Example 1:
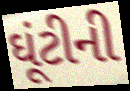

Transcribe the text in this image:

ઘૂંટીની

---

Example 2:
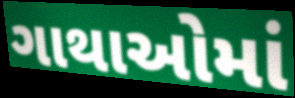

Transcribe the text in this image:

ગાથાઓમાં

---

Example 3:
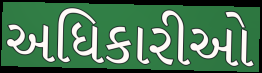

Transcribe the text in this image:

અધિકારીઓ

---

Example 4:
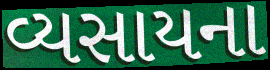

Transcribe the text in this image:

વ્યસાયના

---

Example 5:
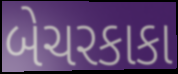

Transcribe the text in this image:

બેચરકાકા